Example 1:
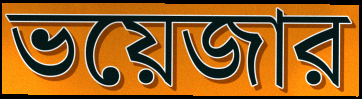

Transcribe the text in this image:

ভয়েজার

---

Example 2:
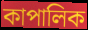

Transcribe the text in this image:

কাপালিক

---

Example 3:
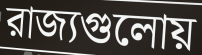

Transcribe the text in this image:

রাজ্যগুলোয়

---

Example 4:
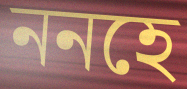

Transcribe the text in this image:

ননহে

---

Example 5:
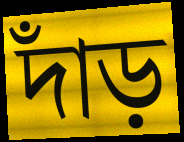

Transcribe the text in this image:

দাঁড়